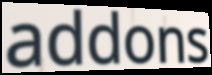
addons